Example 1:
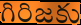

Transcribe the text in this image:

గిరిజకు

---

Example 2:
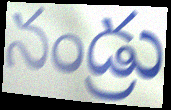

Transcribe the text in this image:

నండ్రు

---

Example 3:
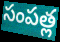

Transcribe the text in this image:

సంపత్ల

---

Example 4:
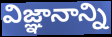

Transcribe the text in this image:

విజ్ఞానాన్ని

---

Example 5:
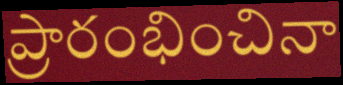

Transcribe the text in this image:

ప్రారంభించినా